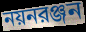
নয়নরঞ্জন